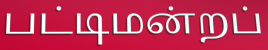
பட்டிமன்றப்